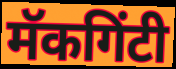
मॅकगिंटी